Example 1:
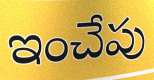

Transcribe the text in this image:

ఇంచేపు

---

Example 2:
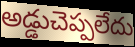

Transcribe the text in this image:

అడ్డుచెప్పలేదు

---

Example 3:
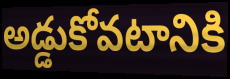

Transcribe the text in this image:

అడ్డుకోవటానికి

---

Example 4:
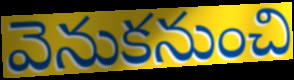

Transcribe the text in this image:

వెనుకనుంచి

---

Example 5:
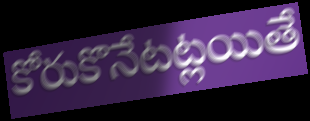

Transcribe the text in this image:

కోరుకొనేటట్లయితే